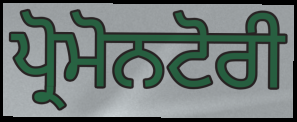
ਪ੍ਰੋਮੋਨਟੋਰੀ